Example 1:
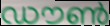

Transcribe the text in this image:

ഡൗൺ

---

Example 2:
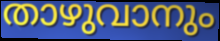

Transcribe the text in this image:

താഴുവാനും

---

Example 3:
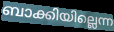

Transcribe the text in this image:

ബാക്കിയില്ലെന്ന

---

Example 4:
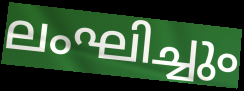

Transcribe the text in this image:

ലംഘിച്ചും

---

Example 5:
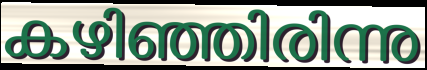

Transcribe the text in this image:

കഴിഞ്ഞിരിന്നു